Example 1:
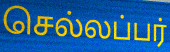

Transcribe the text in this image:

செல்லப்பர்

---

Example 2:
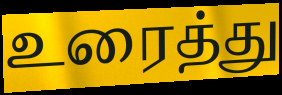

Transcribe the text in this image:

உரைத்து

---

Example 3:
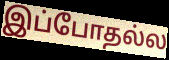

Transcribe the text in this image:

இப்போதல்ல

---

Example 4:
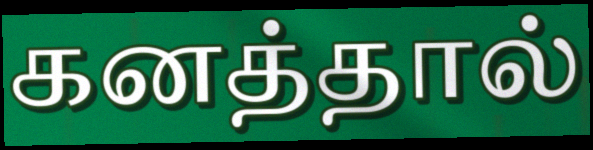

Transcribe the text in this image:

கனத்தால்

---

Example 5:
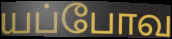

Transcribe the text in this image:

யப்போவ